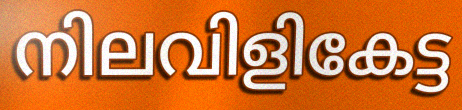
നിലവിളികേട്ട